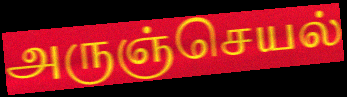
அருஞ்செயல்